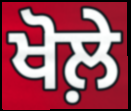
ਖੋਲ਼ੇ